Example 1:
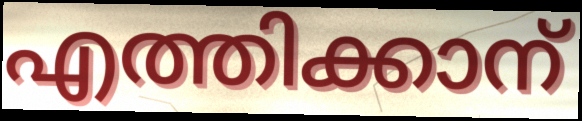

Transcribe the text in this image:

എത്തിക്കാന്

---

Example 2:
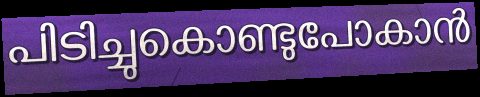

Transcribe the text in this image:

പിടിച്ചുകൊണ്ടുപോകാൻ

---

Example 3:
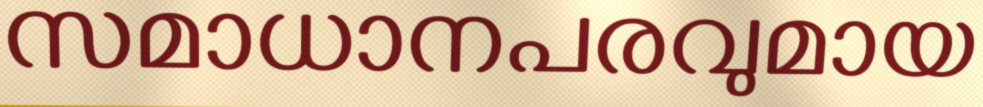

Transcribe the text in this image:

സമാധാനപരവുമായ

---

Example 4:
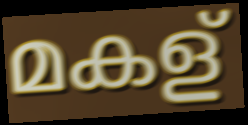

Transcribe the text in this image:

മകള്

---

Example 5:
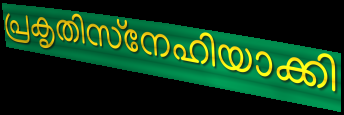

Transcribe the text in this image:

പ്രകൃതിസ്‌നേഹിയാക്കി